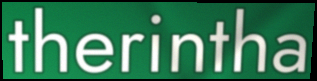
therintha